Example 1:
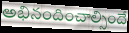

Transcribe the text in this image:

అభినందించాల్సిందే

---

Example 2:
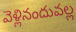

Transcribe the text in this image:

వెళ్లినందువల్ల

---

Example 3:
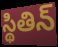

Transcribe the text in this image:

స్థితిన్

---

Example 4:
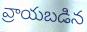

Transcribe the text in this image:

వ్రాయబడిన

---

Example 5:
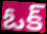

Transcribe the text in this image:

ఓక్